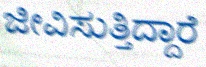
ಜೀವಿಸುತ್ತಿದ್ದಾರೆ